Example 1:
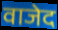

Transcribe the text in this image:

वाजेद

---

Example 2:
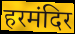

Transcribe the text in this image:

हरमंदिर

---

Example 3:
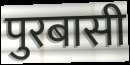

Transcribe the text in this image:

पुरबासी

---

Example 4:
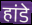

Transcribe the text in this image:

हांडे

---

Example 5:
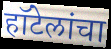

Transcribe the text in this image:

हॉटेलांचा